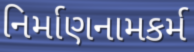
નિર્માણનામકર્મ